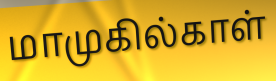
மாமுகில்காள்